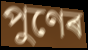
পুণেৰ